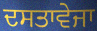
ਦਸਤਾਵੇਜਾ